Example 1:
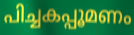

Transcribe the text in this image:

പിച്ചകപ്പൂമണം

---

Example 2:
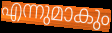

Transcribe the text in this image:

എന്നുമാകും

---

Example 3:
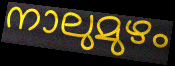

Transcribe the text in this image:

നാലുമുഴം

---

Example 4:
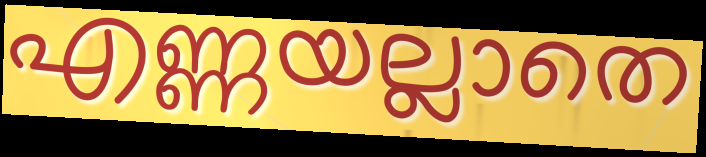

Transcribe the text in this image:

എണ്ണയല്ലാതെ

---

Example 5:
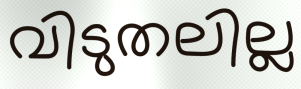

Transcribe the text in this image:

വിടുതലില്ല